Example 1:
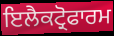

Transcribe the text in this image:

ਇਲੈਕਟ੍ਰੋਫਾਰਮ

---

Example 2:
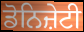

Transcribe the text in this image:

ਡੋਨਿਜ਼ੇਟੀ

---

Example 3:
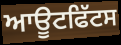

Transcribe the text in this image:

ਆਊਟਫਿੱਟਸ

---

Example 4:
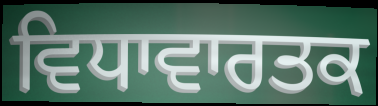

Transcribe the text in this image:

ਵਿਧਾਵਾਰਤਕ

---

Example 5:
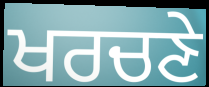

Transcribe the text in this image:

ਖਰਚਣੇ